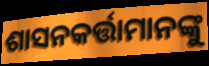
ଶାସନକର୍ତ୍ତାମାନଙ୍କୁ